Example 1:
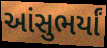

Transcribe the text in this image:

આંસુભર્યાં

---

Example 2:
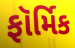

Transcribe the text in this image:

ફૉર્મિક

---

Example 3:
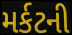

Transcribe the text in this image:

મર્કટની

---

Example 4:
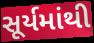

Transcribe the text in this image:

સૂર્યમાંથી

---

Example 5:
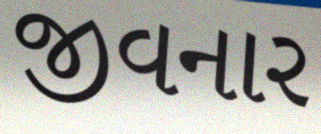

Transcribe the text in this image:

જીવનાર